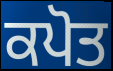
ਕਪੋਤ